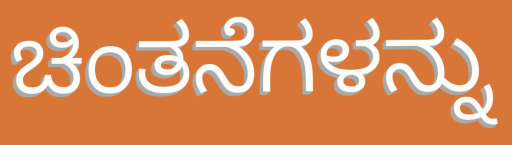
ಚಿಂತನೆಗಳನ್ನು